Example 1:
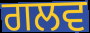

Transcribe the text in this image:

ਗਲਵ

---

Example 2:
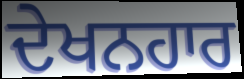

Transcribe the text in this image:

ਦੇਖਨਹਾਰ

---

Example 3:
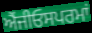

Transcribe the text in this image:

ਐਂਜੀਓਸਪਰਮਾਂ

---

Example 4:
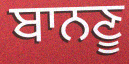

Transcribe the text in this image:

ਬਾਨਣੂ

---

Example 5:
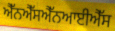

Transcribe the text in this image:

ਐੱਨਐੱਸਐੱਨਆਈਐੱਸ